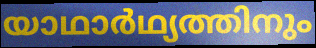
യാഥാർഥ്യത്തിനും